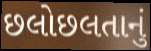
છલોછલતાનું